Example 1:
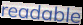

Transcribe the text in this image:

readable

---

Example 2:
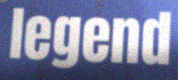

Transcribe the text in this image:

legend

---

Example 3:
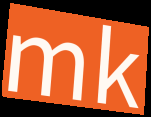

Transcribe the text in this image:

mk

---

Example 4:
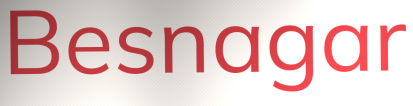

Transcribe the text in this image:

Besnagar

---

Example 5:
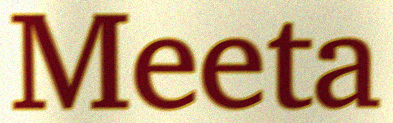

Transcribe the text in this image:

Meeta